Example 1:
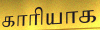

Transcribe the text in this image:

காரியாக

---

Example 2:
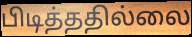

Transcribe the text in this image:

பிடித்ததில்லை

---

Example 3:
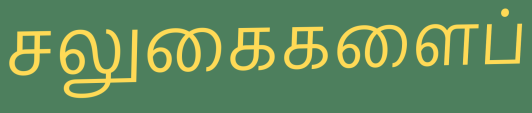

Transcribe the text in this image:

சலுகைகளைப்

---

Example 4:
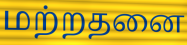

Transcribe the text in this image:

மற்றதனை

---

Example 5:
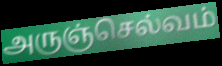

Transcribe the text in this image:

அருஞ்செல்வம்